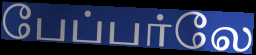
பேப்பர்லே